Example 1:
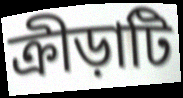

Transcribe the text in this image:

ক্রীড়াটি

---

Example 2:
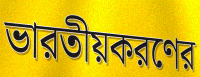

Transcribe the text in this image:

ভারতীয়করণের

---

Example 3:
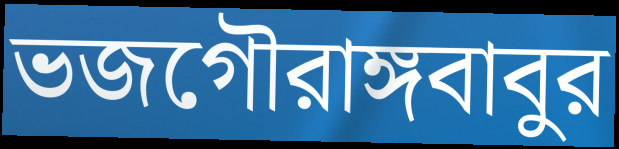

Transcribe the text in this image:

ভজগৌরাঙ্গবাবুর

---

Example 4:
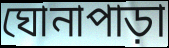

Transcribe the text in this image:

ঘোনাপাড়া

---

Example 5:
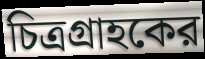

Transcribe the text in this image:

চিত্রগ্রাহকের